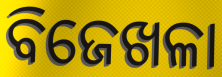
ବିଜେଖଳା